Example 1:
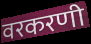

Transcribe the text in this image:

वरकरणी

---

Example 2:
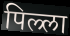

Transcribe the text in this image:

पिल्ला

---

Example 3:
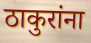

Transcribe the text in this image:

ठाकुरांना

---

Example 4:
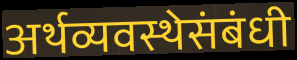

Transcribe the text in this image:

अर्थव्यवस्थेसंबंधी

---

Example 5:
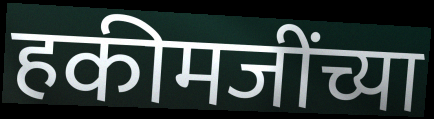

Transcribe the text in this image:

हकीमजींच्या